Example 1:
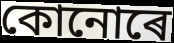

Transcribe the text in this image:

কোনোৰে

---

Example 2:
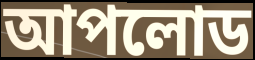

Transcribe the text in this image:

আপলোড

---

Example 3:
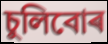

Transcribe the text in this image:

চুলিবোৰ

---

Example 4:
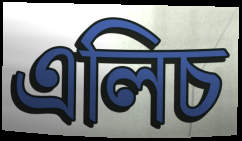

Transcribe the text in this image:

এলিচ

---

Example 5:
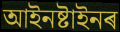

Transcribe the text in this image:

আইনষ্টাইনৰ